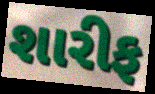
શારીફ